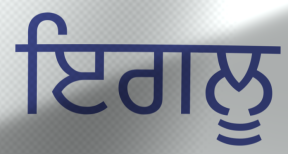
ਇਗਲੂ